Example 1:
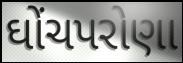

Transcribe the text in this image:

ઘોંચપરોણા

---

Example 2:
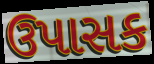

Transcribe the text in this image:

ઉપાસક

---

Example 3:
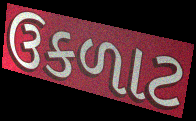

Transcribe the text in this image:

ઉકળાટ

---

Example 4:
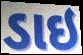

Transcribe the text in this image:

ડાઇ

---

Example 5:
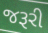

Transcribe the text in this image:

જરૂરી